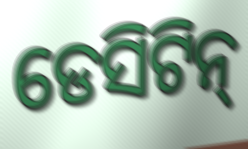
ଡେସିଟିନ୍